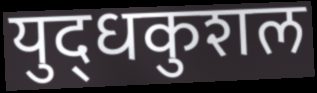
युद्धकुशल